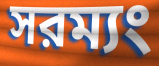
সরম্যং